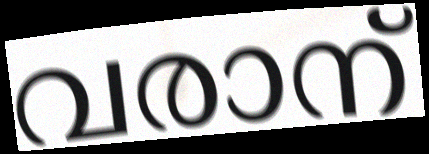
വരാന്